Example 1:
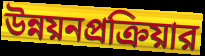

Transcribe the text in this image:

উন্নয়নপ্রক্রিয়ার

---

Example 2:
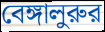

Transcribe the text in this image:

বেঙ্গালুরুর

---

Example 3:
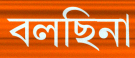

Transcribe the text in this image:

বলছিনা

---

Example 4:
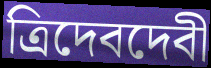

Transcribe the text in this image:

ত্রিদেবদেবী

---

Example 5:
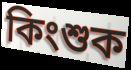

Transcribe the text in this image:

কিংশুক